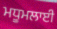
ਮਧੂਮਲਾਈ